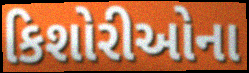
કિશોરીઓના